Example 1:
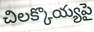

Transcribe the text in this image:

చిలక్కొయ్యపై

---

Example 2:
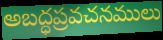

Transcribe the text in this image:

అబద్ధప్రవచనములు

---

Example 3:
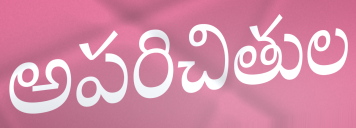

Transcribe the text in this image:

అపరిచితుల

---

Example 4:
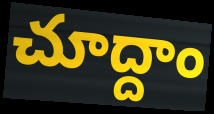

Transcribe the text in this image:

చూద్దాం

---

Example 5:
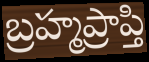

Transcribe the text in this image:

బ్రహ్మప్రాప్తి